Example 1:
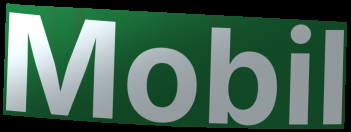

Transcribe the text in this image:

Mobil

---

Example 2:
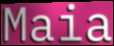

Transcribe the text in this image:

Maia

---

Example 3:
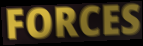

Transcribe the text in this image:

FORCES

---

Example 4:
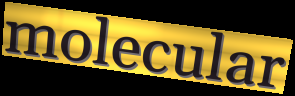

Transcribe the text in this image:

molecular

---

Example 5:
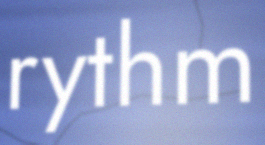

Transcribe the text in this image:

rythm